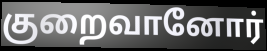
குறைவானோர்